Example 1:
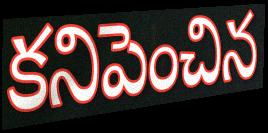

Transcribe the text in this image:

కనిపెంచిన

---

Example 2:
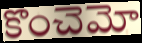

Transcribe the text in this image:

కొంచెమో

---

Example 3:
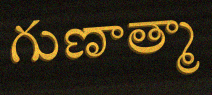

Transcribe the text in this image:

గుణాత్మా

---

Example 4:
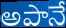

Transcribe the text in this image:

అపానే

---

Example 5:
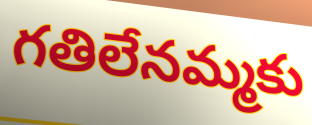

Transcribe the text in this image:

గతిలేనమ్మకు